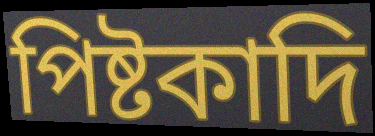
পিষ্টকাদি